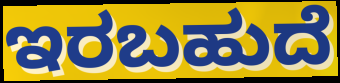
ಇರಬಹುದೆ